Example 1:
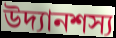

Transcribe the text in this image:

উদ্যানশস্য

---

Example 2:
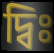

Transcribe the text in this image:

দ্বিঃ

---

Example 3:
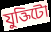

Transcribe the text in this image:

যুক্তিটো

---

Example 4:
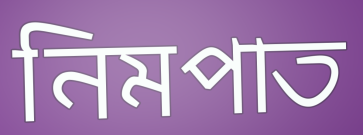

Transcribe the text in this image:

নিমপাত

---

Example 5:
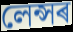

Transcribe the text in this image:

লেন্সৰ